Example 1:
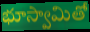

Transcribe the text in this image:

భూస్వామితో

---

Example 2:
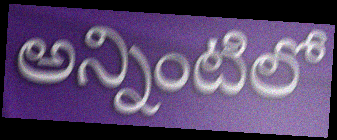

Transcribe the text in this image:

అన్నింటిలో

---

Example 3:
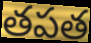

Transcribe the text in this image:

తపత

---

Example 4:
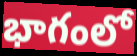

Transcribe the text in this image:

భాగంలో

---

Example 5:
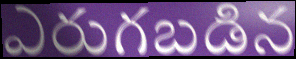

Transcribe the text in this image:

ఎరుగబడిన